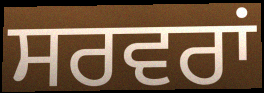
ਸਰਵਰਾਂ